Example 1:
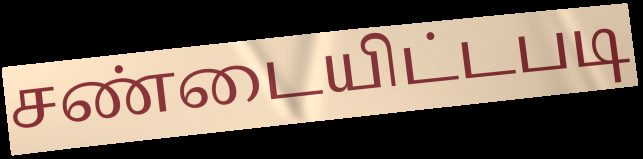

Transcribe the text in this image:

சண்டையிட்டபடி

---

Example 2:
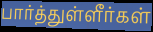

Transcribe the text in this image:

பார்த்துள்ளீர்கள்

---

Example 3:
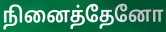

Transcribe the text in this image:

நினைத்தேனோ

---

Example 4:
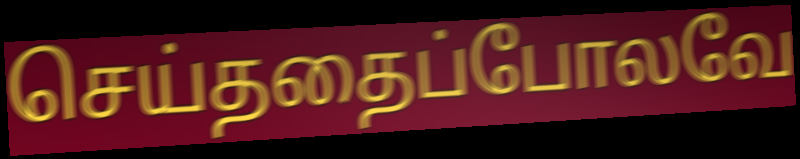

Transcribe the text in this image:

செய்ததைப்போலவே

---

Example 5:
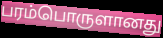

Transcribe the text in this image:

பரம்பொருளானது